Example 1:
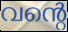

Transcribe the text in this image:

വന്റെ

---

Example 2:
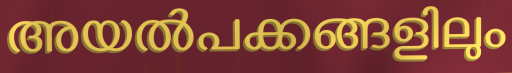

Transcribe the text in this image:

അയൽപക്കങ്ങളിലും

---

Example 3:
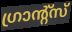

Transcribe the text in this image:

ഗ്രാന്റ്സ്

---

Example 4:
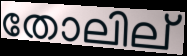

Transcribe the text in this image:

തോലില്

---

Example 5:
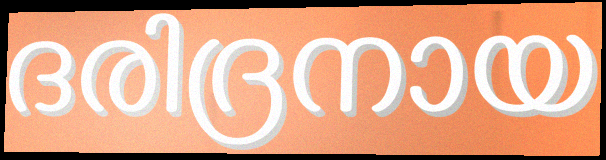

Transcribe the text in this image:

ദരിദ്രനായ